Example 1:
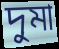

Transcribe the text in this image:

দুমা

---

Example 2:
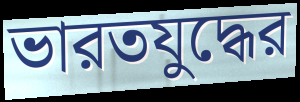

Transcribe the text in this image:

ভারতযুদ্ধের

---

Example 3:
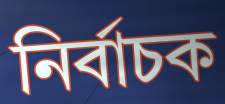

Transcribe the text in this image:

নির্বাচক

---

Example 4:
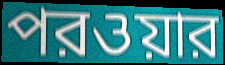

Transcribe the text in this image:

পরওয়ার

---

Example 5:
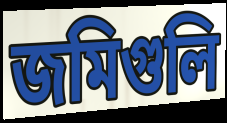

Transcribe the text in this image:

জমিগুলি